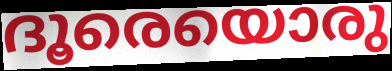
ദൂരെയൊരു